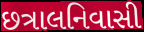
છત્રાલનિવાસી